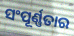
ସଂପୂର୍ଣ୍ଣତାର